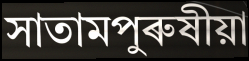
সাতামপুৰুষীয়া